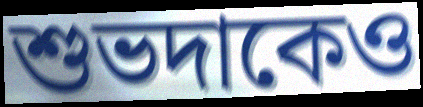
শুভদাকেও